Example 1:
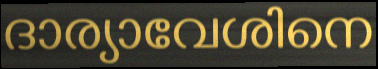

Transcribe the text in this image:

ദാര്യാവേശിനെ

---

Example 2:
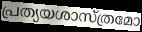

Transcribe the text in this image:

പ്രത്യയശാസ്ത്രമോ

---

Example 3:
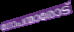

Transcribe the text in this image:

ഗോപന്മാരോട്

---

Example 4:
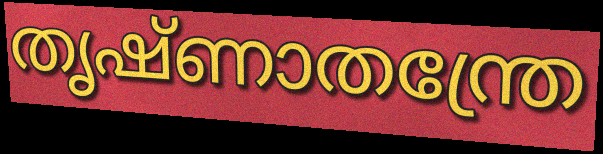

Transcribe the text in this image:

തൃഷ്ണാതന്ത്രേ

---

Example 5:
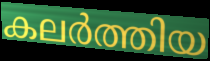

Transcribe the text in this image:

കലർത്തിയ